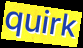
quirk